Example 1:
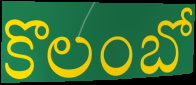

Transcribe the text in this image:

కొలంబో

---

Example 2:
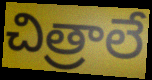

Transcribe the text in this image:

చిత్రాలే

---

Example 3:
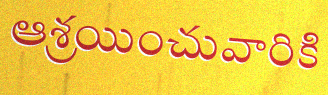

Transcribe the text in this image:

ఆశ్రయించువారికి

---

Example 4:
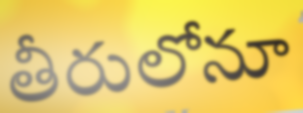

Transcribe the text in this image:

తీరులోనూ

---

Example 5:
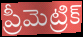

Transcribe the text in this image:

ప్రీమెట్రిక్